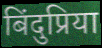
बिंदुप्रिया